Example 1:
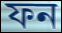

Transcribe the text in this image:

ফন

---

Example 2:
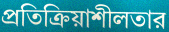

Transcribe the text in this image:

প্রতিক্রিয়াশীলতার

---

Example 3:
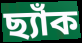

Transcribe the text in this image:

ছ্যাঁক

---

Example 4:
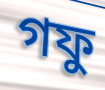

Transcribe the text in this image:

গফু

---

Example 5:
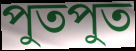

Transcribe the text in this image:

পুতপুত